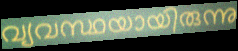
വ്യവസ്ഥയായിരുന്നു